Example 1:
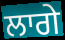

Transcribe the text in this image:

ਲਾਗੇ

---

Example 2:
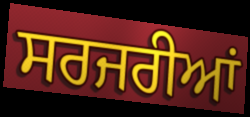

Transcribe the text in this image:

ਸਰਜਰੀਆਂ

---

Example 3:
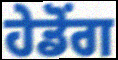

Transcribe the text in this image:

ਹੇਡੋਂਗ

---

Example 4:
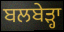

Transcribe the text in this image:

ਬਲਬੇੜ੍ਹਾ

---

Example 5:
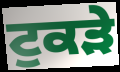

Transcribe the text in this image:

ਟੁਕੜੇ